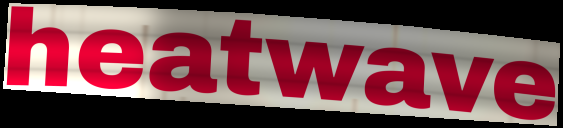
heatwave